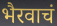
भैरवाचं